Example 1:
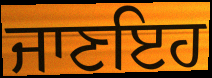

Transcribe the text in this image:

ਜਾਣਇਹ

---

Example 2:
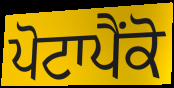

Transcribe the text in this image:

ਪੋਟਾਪੈਂਕੋ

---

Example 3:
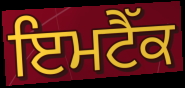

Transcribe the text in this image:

ਇਮਟੈੱਕ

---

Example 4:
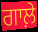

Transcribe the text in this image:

ਗਾਲ਼ੇ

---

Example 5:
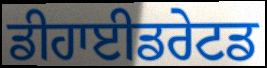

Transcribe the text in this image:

ਡੀਹਾਈਡਰੇਟਡ